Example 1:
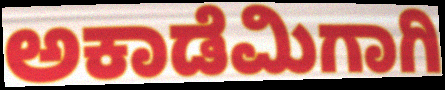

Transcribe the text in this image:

ಅಕಾಡೆಮಿಗಾಗಿ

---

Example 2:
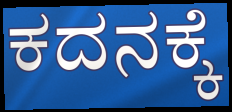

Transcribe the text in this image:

ಕದನಕ್ಕೆ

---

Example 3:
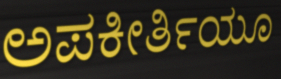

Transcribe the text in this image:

ಅಪಕೀರ್ತಿಯೂ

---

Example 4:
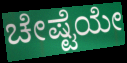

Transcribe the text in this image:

ಚೇಷ್ಟೆಯೇ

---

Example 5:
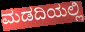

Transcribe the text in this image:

ಮಡದಿಯಲ್ಲಿ